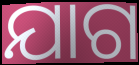
ଯାଗ